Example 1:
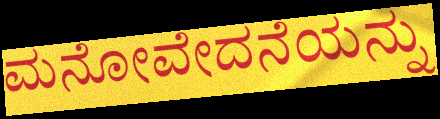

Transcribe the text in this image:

ಮನೋವೇದನೆಯನ್ನು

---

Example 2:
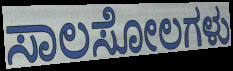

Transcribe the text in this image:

ಸಾಲಸೋಲಗಳು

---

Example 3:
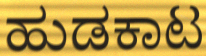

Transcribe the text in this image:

ಹುಡಕಾಟ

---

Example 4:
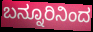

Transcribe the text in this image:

ಬನ್ನೂರಿನಿಂದ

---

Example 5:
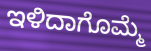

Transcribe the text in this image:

ಇಳಿದಾಗೊಮ್ಮೆ